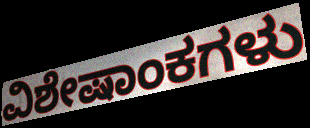
ವಿಶೇಷಾಂಕಗಳು